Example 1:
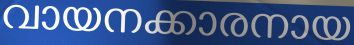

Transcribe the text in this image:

വായനക്കാരനായ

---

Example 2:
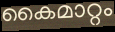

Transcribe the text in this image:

കൈമാറ്റം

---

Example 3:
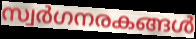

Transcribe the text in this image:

സ്വർഗനരകങ്ങൾ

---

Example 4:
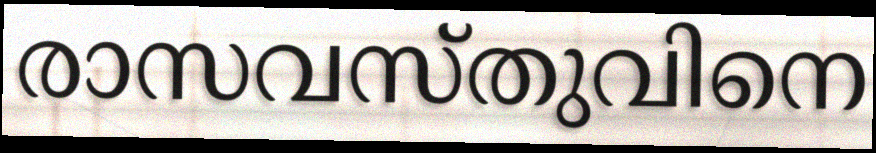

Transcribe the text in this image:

രാസവസ്തുവിനെ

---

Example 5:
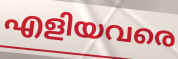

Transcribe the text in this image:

എളിയവരെ